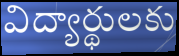
విద్యార్థులకు